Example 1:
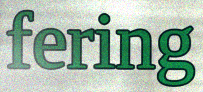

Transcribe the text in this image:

fering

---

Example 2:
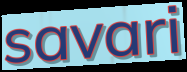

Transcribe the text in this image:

savari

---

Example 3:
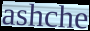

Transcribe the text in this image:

ashche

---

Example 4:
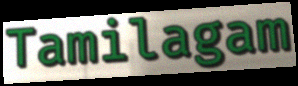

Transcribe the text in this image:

Tamilagam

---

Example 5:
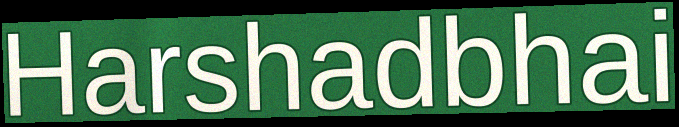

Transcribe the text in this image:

Harshadbhai